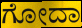
ಗೋದಾ